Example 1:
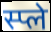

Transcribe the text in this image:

स्प्ले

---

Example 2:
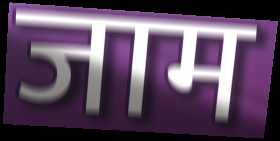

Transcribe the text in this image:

जाम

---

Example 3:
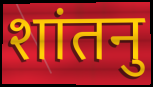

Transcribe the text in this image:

शांतनु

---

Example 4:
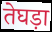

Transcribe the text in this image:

तेघड़ा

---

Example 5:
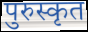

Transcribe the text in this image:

पुरुस्कृत